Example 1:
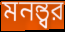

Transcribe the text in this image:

মনন্ত্বর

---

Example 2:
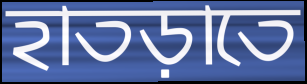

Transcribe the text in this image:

হাতড়াতে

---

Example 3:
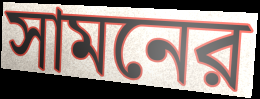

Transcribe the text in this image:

সামনের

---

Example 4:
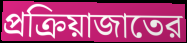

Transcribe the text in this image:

প্রক্রিয়াজাতের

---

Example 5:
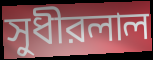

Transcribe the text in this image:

সুধীরলাল